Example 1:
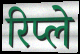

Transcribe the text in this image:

रिप्ले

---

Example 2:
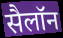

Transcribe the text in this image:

सैलॉन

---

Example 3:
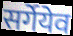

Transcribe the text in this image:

सर्गेयेव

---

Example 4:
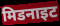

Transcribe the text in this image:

मिडनाइट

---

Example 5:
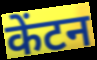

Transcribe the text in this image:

केंटन